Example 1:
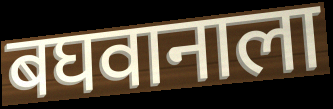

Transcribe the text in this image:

बघवानाला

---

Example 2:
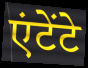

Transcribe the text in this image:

एंटेंटे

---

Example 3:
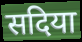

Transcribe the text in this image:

सदिया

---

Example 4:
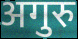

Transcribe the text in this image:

अगुरु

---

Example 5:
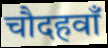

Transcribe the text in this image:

चौदहवाँ